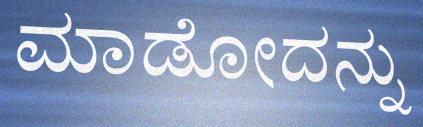
ಮಾಡೋದನ್ನು